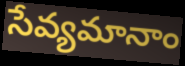
సేవ్యమానాం